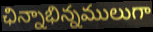
ఛిన్నాభిన్నములుగా